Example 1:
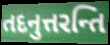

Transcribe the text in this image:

તદનુત્તરન્તિ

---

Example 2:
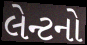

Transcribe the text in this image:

લેન્ટનો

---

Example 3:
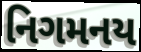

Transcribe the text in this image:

નિગમનય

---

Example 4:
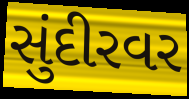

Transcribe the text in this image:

સુંદીરવર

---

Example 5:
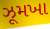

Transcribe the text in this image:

ઝૂમખા